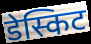
डेस्किट